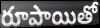
రూపాయితో